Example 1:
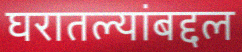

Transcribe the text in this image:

घरातल्यांबद्दल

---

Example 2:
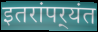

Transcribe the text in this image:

इतरांपर्यंत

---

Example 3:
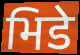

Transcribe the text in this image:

भिडे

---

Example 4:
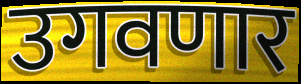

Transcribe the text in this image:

उगवणार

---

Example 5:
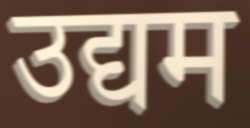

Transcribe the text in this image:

उद्यम